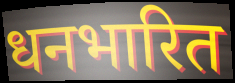
धनभारित